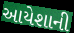
આયેશાની